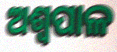
ଅଶ୍ୱପାଳ